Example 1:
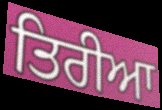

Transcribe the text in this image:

ਤਿਰੀਆ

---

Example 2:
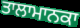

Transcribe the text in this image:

ਤਾਲਾਮਾਨਕਾ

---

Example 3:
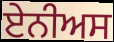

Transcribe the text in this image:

ਏਨੀਅਸ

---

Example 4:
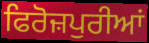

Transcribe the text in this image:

ਫਿਰੋਜ਼ਪੁਰੀਆਂ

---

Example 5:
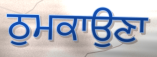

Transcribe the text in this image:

ਠੁਮਕਾਉਣਾ